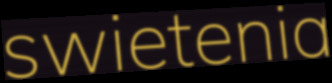
swietenia